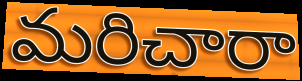
మరిచారా